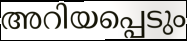
അറിയപ്പെടും